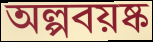
অল্পবয়ষ্ক